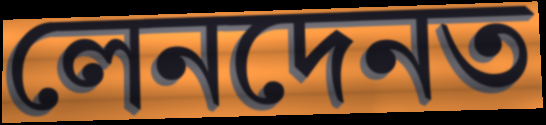
লেনদেনত